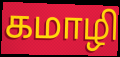
கமாழி